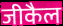
जीकैल